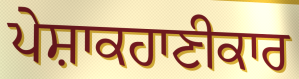
ਪੇਸ਼ਾਕਹਾਣੀਕਾਰ